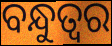
ବନ୍ଧୁତ୍ବର